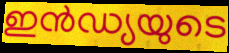
ഇൻഡ്യയുടെ